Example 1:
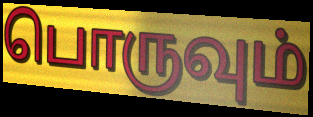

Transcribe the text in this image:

பொருவும்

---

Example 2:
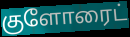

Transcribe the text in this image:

குளோரைட்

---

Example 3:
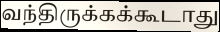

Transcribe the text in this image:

வந்திருக்கக்கூடாது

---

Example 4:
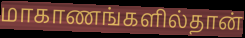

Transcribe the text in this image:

மாகாணங்களில்தான்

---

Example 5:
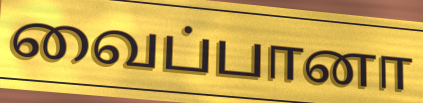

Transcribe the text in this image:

வைப்பானா